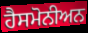
ਹੈਸਮੋਨੀਅਨ